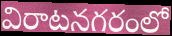
విరాటనగరంలో